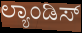
ಲ್ಯಾಂಡಿಸ್